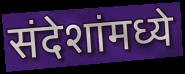
संदेशांमध्ये